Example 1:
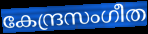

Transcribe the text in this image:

കേന്ദ്രസംഗീത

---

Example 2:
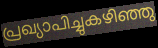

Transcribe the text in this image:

പ്രഖ്യാപിച്ചുകഴിഞ്ഞു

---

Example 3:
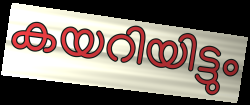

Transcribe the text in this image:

കയറിയിട്ടും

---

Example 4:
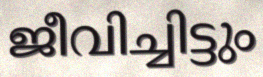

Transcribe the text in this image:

ജീവിച്ചിട്ടും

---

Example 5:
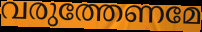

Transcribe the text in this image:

വരുത്തേണമേ